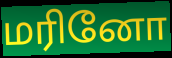
மரினோ